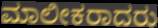
ಮಾಲೀಕರಾದರು